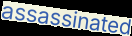
assassinated